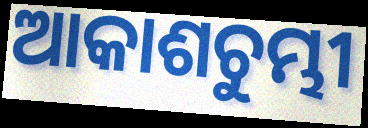
ଆକାଶଚୁମ୍ଭୀ